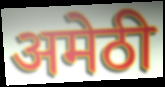
अमेठी